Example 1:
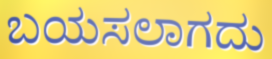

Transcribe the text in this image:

ಬಯಸಲಾಗದು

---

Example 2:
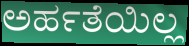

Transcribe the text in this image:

ಅರ್ಹತೆಯಿಲ್ಲ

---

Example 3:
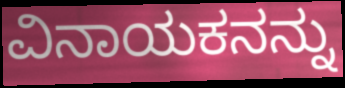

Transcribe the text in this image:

ವಿನಾಯಕನನ್ನು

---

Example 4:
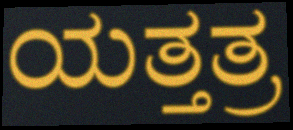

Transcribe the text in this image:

ಯತ್ತತ್ರ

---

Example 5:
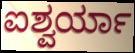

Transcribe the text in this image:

ಐಶ್ವರ್ಯಾ